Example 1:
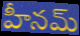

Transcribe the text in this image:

హీనమ్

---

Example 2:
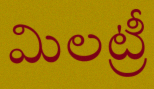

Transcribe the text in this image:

మిలట్రీ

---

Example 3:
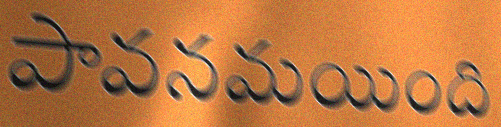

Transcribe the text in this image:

పావనమయింది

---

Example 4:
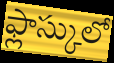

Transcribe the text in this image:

ఫ్లాస్కులో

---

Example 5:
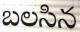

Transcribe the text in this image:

బలసిన